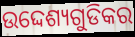
ଉଦ୍ଦେଶ୍ୟଗୁଡିକର